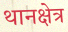
थानक्षेत्र